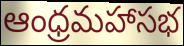
ఆంధ్రమహాసభ